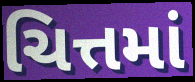
ચિત્તમાં